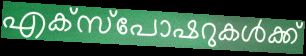
എക്സ്പോഷറുകൾക്ക്